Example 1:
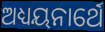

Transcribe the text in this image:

ଅଧ୍ୟୟନାର୍ଥେ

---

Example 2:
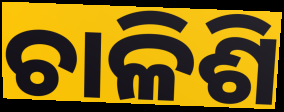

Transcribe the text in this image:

ଚାଳିଶି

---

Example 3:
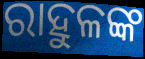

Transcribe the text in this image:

ରାହୁଳଙ୍କ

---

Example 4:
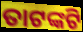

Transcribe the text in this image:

ତାଟଙ୍କଟି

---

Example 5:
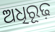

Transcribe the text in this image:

ଅଧିରୂଢ଼